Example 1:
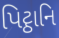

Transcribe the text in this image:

પિટ્ઠાનિ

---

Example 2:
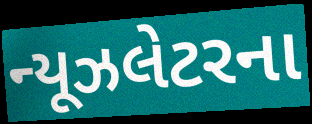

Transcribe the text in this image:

ન્યૂઝલેટરના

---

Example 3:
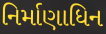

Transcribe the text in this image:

નિર્માણાધિન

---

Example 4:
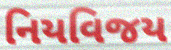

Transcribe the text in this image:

નિયવિજય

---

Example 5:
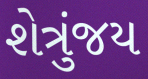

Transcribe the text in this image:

શેત્રુંજય